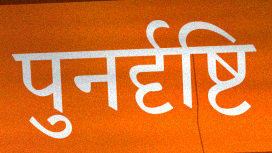
पुनर्दृष्टि